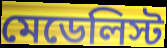
মেডেলিস্ট